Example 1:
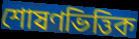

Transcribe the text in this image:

শোষণভিত্তিক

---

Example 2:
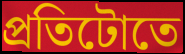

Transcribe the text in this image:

প্ৰতিটোতে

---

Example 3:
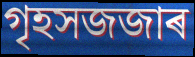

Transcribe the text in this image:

গৃহসজজাৰ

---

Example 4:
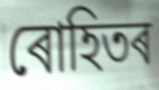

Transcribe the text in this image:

ৰোহিতৰ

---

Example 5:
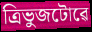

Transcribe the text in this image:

ত্ৰিভুজটোৱে